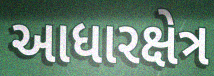
આધારક્ષેત્ર